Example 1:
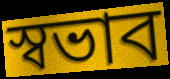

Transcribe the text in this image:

স্বভাব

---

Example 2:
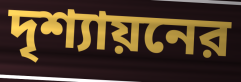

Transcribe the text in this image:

দৃশ্যায়নের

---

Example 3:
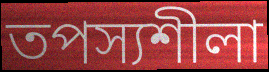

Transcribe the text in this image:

তপস্যশীলা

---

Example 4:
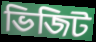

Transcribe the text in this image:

ভিজিট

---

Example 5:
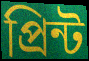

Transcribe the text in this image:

প্রিন্ট